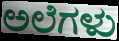
ಅಲೆಗಳು